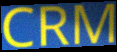
CRM